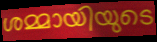
ശമ്മായിയുടെ